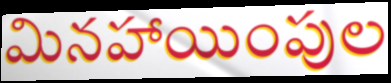
మినహాయింపుల